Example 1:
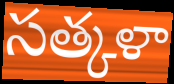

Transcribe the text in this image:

సత్కళా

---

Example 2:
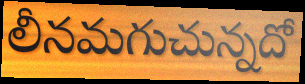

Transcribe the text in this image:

లీనమగుచున్నదో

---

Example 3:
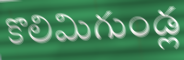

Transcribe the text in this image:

కొలిమిగుండ్ల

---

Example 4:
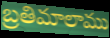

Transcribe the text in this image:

బ్రతిమాలాము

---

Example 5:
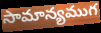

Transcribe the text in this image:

సామాన్యముగ